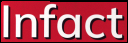
Infact